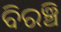
ବିରଞ୍ଚି